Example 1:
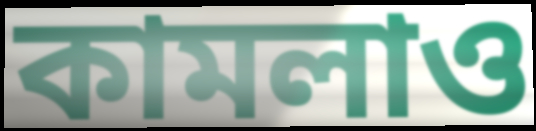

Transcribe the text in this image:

কামলাও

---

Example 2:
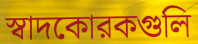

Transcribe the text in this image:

স্বাদকোরকগুলি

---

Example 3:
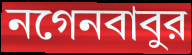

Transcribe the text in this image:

নগেনবাবুর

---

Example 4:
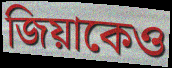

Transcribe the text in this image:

জিয়াকেও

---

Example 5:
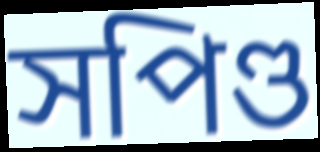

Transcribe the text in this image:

সপিণ্ড